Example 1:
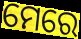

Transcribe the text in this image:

ମେରେ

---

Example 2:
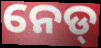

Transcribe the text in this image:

ନେଡ୍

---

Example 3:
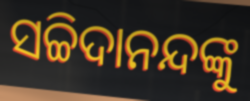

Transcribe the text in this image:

ସଚ୍ଚିଦାନନ୍ଦଙ୍କୁ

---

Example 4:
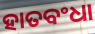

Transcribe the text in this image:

ହାତବଂଧା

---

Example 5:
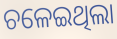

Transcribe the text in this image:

ଚଳେଇଥିଲା